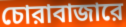
চোরাবাজারে